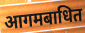
आगमबाधित